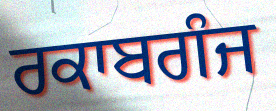
ਰਕਾਬਗੰਜ